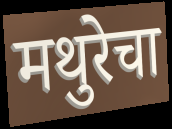
मथुरेचा